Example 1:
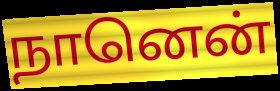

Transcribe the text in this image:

நானென்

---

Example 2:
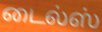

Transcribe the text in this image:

டைல்ஸ்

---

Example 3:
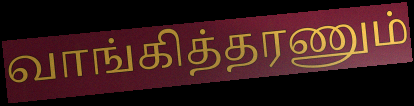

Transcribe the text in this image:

வாங்கித்தரணும்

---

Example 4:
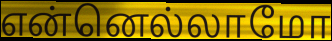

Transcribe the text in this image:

என்னெல்லாமோ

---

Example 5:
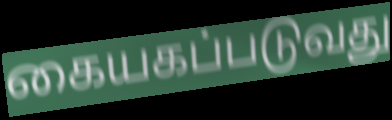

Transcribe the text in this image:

கையகப்படுவது